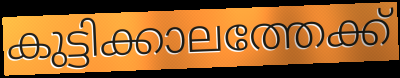
കുട്ടിക്കാലത്തേക്ക്